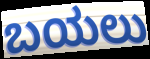
ಬಯಲು